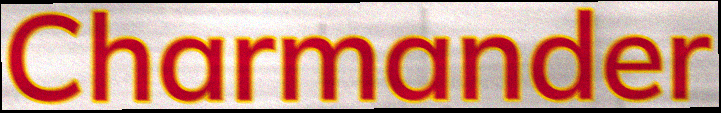
Charmander